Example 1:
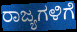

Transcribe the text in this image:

ರಾಜ್ಯಗಳಿಗೆ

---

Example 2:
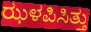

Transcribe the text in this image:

ಝಳಪಿಸಿತ್ತು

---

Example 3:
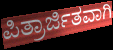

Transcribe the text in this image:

ಪಿತ್ರಾರ್ಜಿತವಾಗಿ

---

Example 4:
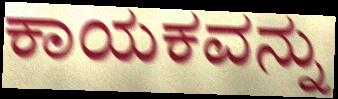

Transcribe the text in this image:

ಕಾಯಕವನ್ನು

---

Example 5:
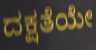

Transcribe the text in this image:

ದಕ್ಷತೆಯೇ